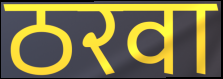
ठरवा